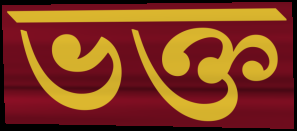
ভক্ত